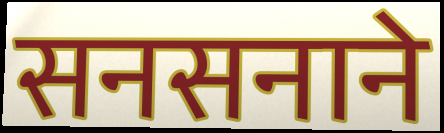
सनसनाने